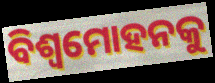
ବିଶ୍ଵମୋହନକୁ